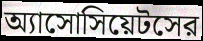
অ্যাসোসিয়েটসের